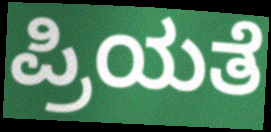
ಪ್ರಿಯತೆ